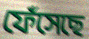
ফেঁসেছে